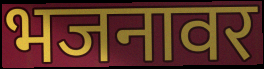
भजनावर